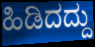
ಹಿಡಿದದ್ದು